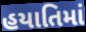
હયાતિમાં